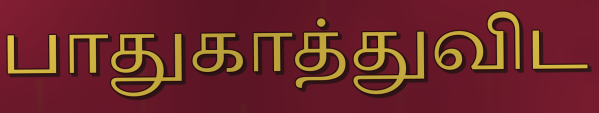
பாதுகாத்துவிட